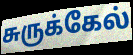
சுருக்கேல்